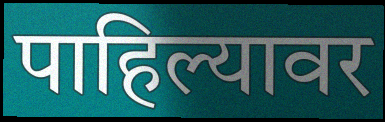
पाहिल्‍यावर